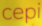
cepi